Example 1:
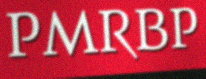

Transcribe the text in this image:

PMRBP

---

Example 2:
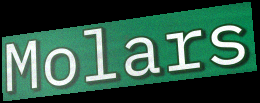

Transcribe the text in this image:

Molars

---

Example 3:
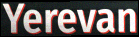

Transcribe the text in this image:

Yerevan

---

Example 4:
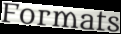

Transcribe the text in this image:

Formats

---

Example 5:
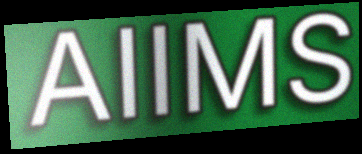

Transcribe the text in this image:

AIIMS